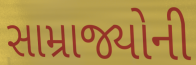
સામ્રાજ્યોની